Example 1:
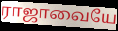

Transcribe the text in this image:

ராஜாவையே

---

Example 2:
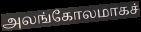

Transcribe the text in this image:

அலங்கோலமாகச்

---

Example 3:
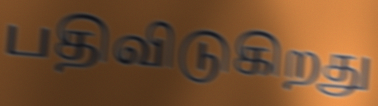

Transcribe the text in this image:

பதிவிடுகிறது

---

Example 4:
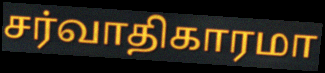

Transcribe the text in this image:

சர்வாதிகாரமா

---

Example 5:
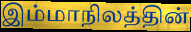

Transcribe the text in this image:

இம்மாநிலத்தின்